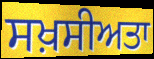
ਸਖ਼ਸੀਅਤਾ